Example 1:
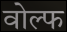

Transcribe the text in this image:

वोल्फ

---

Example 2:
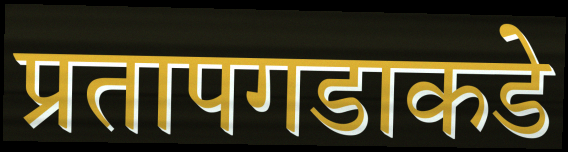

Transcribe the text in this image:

प्रतापगडाकडे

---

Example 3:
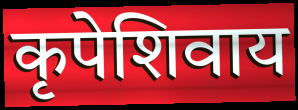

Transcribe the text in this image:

कृपेशिवाय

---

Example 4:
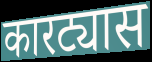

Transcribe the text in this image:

कारट्यास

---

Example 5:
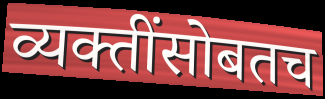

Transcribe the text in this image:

व्यक्तींसोबतच